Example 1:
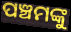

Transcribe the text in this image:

ପଞ୍ଚମଙ୍କୁ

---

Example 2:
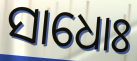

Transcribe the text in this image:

ସାଧୋଃ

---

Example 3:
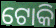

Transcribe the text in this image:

ଟୋକି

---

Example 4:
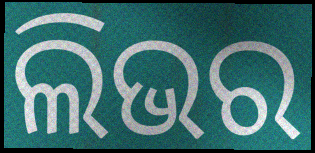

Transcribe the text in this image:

ଲିଭର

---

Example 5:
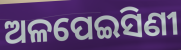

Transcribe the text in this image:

ଅଳପେଇସିଣୀ